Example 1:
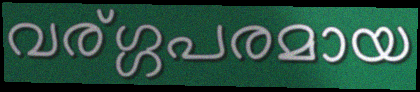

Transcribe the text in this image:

വര്ഗ്ഗപരമായ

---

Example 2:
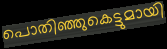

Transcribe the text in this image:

പൊതിഞ്ഞുകെട്ടുമായി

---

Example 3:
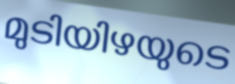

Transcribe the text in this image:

മുടിയിഴയുടെ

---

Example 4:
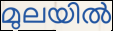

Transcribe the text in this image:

മുലയിൽ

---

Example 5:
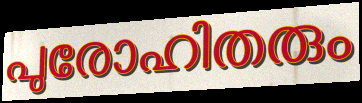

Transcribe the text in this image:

പുരോഹിതരും